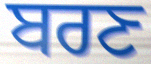
ਬਰਣ